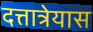
दत्तात्रेयास